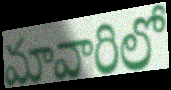
మావారిలో